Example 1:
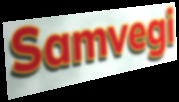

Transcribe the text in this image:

Samvegi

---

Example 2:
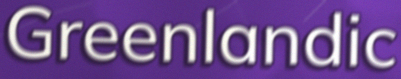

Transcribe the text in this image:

Greenlandic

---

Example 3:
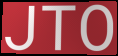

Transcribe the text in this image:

JTO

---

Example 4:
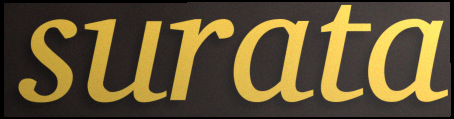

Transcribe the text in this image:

surata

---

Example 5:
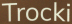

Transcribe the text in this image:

Trocki